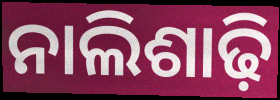
ନାଲିଶାଢ଼ି